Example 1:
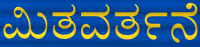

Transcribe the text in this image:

ಮಿತವರ್ತನೆ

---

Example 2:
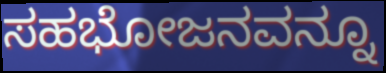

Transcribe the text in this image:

ಸಹಭೋಜನವನ್ನೂ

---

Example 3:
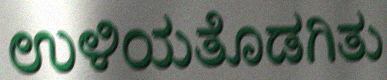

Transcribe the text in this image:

ಉಳಿಯತೊಡಗಿತು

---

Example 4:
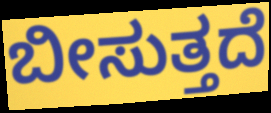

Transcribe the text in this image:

ಬೀಸುತ್ತದೆ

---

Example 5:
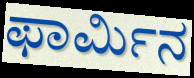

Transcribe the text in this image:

ಫಾರ್ಮಿನ